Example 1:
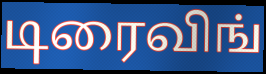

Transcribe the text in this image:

டிரைவிங்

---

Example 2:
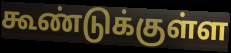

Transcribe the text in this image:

கூண்டுக்குள்ள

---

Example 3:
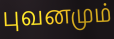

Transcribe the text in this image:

புவனமும்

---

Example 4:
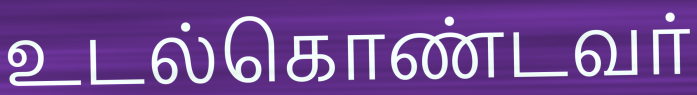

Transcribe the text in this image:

உடல்கொண்டவர்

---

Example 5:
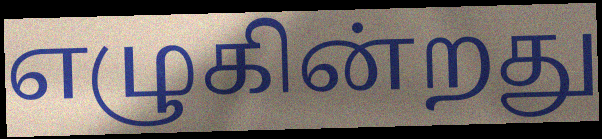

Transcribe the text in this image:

எழுகின்றது